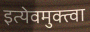
इत्येवमुक्त्वा